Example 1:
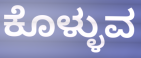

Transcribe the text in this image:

ಕೊಳ್ಳುವ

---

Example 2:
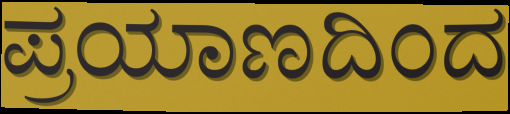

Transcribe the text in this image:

ಪ್ರಯಾಣದಿಂದ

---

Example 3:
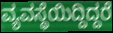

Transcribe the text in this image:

ವ್ಯವಸ್ಥೆಯಿದ್ದಿದ್ದರೆ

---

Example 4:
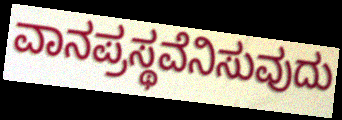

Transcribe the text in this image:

ವಾನಪ್ರಸ್ಥವೆನಿಸುವುದು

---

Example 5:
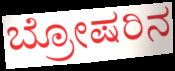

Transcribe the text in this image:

ಬ್ರೋಷರಿನ